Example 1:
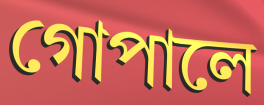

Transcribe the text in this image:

গোপালে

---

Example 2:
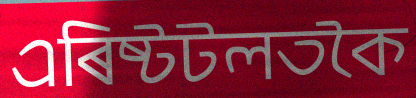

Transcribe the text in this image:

এৰিষ্টটলতকৈ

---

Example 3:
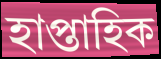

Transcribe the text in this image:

হাপ্তাহিক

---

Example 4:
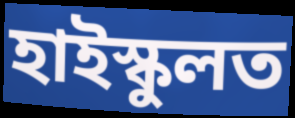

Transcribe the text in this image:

হাইস্কুলত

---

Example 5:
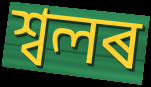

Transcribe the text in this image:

শ্বলৰ